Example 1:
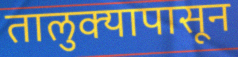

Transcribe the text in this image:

तालुक्यापासून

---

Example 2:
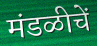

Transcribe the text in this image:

मंडळीचें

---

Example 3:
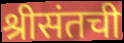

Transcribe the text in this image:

श्रीसंतची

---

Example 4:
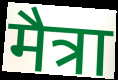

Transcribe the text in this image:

मैत्रा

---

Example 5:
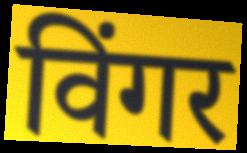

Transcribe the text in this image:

विंगर